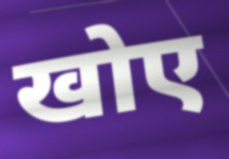
खोए